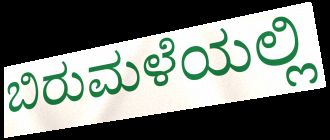
ಬಿರುಮಳೆಯಲ್ಲಿ